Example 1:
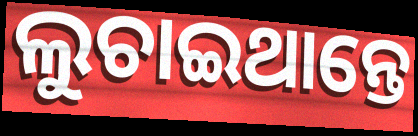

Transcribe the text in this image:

ଲୁଚାଇଥାନ୍ତେ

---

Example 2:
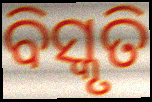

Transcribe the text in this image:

ବିସ୍କୃତି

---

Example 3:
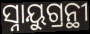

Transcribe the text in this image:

ସ୍ନାୟୁଗ୍ରନ୍ଥୀ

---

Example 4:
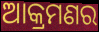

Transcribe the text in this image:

ଆକ୍ରମଣର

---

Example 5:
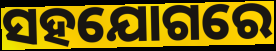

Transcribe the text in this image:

ସହଯୋଗରେ